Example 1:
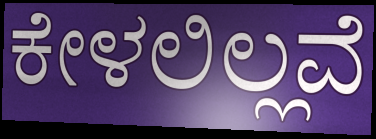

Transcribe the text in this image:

ಕೇಳಲಿಲ್ಲವೆ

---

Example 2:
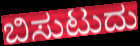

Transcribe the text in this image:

ಬಿಸುಟುದು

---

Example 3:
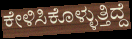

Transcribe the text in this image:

ಕೇಳಿಸಿಕೊಳ್ಳುತ್ತಿದ್ದೆ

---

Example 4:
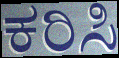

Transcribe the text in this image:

ಕರಿಸಿ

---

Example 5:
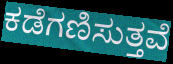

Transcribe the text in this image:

ಕಡೆಗಣಿಸುತ್ತವೆ